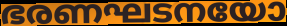
ഭരണഘടനയോ